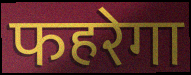
फहरेगा